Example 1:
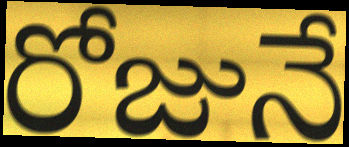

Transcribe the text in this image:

రోజునే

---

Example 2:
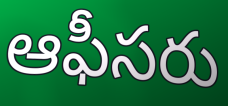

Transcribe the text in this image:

ఆఫీసరు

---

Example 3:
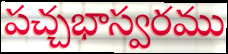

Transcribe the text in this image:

పచ్చభాస్వరము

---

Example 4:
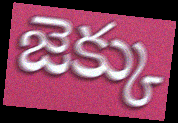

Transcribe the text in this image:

జెక్కు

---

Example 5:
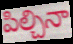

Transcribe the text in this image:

పిల్చినా